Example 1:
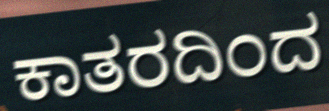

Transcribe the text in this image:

ಕಾತರದಿಂದ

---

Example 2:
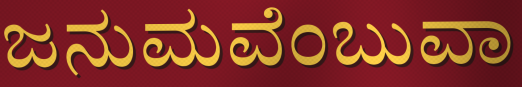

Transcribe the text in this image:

ಜನುಮವೆಂಬುವಾ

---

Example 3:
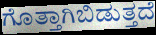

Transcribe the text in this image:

ಗೊತ್ತಾಗಿಬಿಡುತ್ತದೆ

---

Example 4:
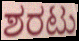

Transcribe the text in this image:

ಶರಟು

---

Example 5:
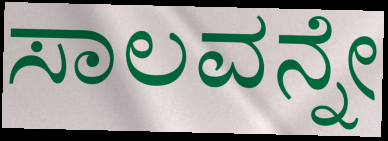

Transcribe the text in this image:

ಸಾಲವನ್ನೇ